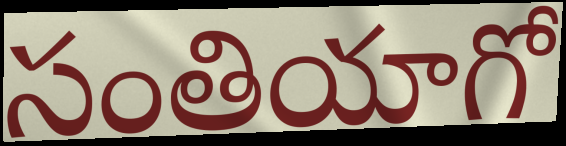
సంతియాగో